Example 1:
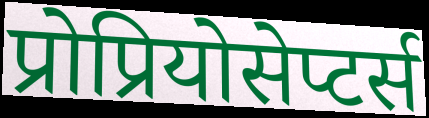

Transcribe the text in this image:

प्रोप्रियोसेप्टर्स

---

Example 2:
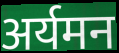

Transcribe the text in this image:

अर्यमन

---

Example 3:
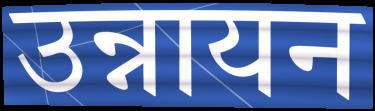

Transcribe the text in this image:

उन्नायन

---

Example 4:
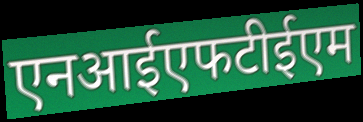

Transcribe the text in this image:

एनआईएफटीईएम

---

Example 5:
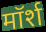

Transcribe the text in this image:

मॉर्श